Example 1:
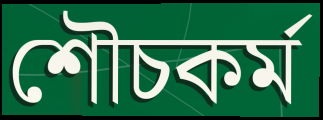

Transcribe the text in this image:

শৌচকর্ম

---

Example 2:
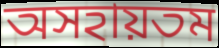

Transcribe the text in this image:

অসহায়তম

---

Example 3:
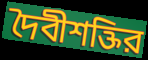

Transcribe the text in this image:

দৈবীশক্তির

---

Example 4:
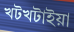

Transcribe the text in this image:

খটখটাইয়া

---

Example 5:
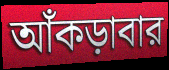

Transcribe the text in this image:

আঁকড়াবার